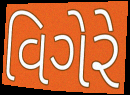
વિગેરે